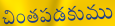
చింతపడకుము